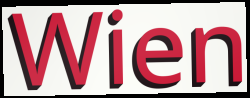
Wien